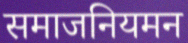
समाजनियमन